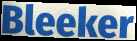
Bleeker